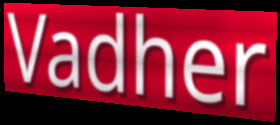
Vadher